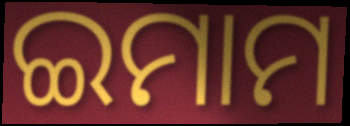
ଇମାମ